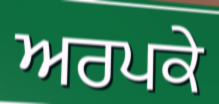
ਅਰਪਕੇ